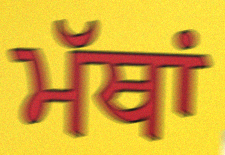
ਮੱਥਾਂ